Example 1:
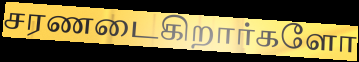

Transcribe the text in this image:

சரணடைகிறார்களோ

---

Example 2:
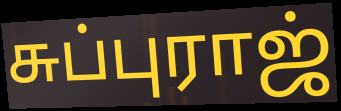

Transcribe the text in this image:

சுப்புராஜ்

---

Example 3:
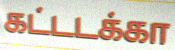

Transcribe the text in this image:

கட்டடக்கா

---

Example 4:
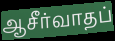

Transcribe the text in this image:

ஆசீர்வாதப்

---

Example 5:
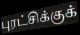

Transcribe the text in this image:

புரட்சிக்குக்